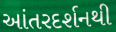
આંતરદર્શનથી